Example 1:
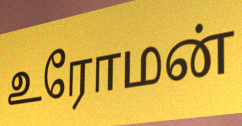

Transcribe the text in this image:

உரோமன்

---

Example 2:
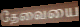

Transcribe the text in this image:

தேவையை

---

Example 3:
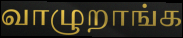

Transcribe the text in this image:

வாழுறாங்க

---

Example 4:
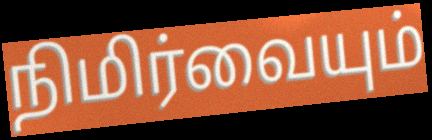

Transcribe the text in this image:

நிமிர்வையும்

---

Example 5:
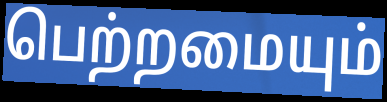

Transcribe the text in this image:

பெற்றமையும்